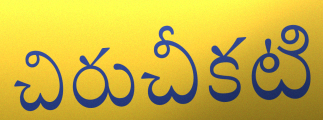
చిరుచీకటి